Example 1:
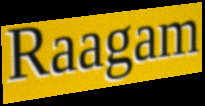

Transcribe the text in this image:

Raagam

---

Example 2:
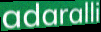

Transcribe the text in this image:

adaralli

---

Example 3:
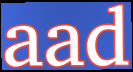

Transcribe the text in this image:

aad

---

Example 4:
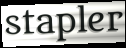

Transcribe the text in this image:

stapler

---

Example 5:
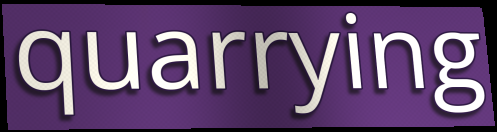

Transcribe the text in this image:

quarrying